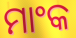
ମାଂକ